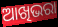
ଆଖିଭରା